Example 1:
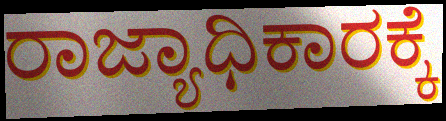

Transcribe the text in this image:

ರಾಜ್ಯಾಧಿಕಾರಕ್ಕೆ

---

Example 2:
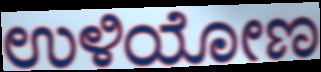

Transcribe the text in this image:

ಉಳಿಯೋಣ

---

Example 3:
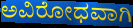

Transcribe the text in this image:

ಅವಿರೋಧವಾಗಿ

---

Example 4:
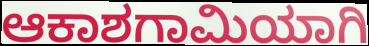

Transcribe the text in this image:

ಆಕಾಶಗಾಮಿಯಾಗಿ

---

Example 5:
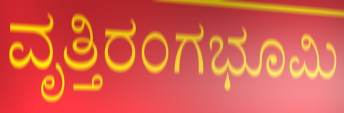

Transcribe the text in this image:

ವೃತ್ತಿರಂಗಭೂಮಿ